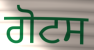
ਗੋਟਸ